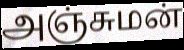
அஞ்சுமன்